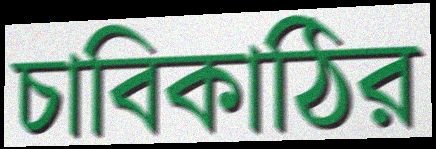
চাবিকাঠির